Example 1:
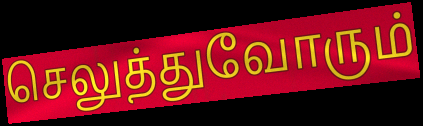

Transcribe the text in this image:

செலுத்துவோரும்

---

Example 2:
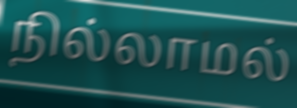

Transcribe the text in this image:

நில்லாமல்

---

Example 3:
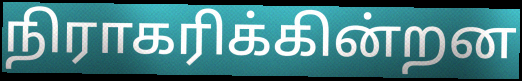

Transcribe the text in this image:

நிராகரிக்கின்றன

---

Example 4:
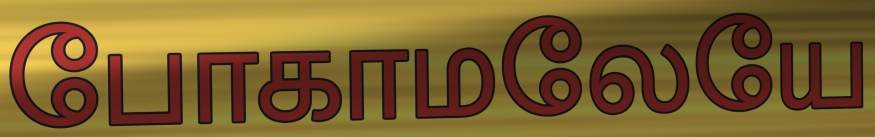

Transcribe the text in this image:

போகாமலேயே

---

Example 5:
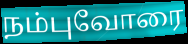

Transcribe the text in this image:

நம்புவோரை